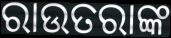
ରାଉତରାଙ୍କ